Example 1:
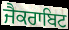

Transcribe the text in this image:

ਜੈਕਰਾਬਿਟ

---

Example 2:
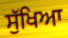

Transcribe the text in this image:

ਸੁੱਖਿਆ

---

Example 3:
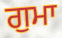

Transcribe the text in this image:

ਗੁਮਾ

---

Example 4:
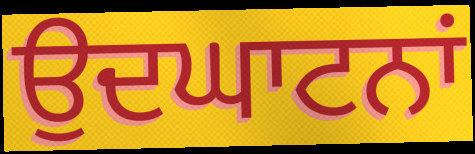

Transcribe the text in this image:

ਉਦਘਾਟਨਾਂ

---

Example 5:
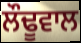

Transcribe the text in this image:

ਲੌਢੂਵਾਲ